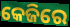
କେଜିରେ